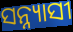
ସନ୍ନ୍ୟାସୀ